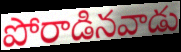
పోరాడినవాడు